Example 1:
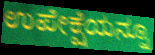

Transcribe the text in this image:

ಉಪೇಕ್ಷೆಯನ್ನೂ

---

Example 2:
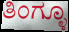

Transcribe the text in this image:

ತಿಂಗ್ಳೂ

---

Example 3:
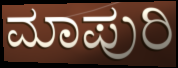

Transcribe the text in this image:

ಮಾಪುರಿ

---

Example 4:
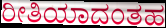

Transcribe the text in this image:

ರೀತಿಯಾದಂತಹ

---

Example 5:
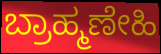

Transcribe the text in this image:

ಬ್ರಾಹ್ಮಣೇಹಿ